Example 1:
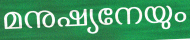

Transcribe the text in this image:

മനുഷ്യനേയും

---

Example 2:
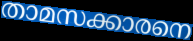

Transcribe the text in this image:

താമസക്കാരനെ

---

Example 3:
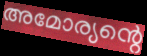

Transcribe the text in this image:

അമോര്യന്റെ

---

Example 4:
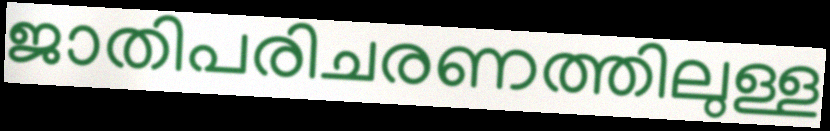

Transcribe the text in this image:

ജാതിപരിചരണത്തിലുള്ള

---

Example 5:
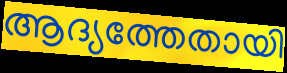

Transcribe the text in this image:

ആദ്യത്തേതായി